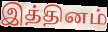
இத்தினம்